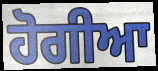
ਹੋਗੀਆ